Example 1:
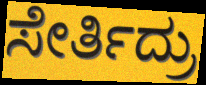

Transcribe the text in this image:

ಸೇರ್ತಿದ್ರು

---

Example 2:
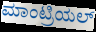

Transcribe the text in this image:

ಮಾಂಟ್ರಿಯಲ್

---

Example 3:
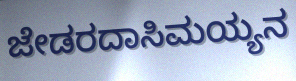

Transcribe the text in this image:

ಜೇಡರದಾಸಿಮಯ್ಯನ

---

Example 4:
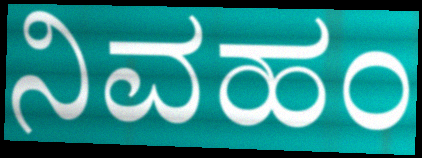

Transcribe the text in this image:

ನಿವಹಂ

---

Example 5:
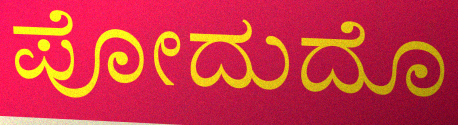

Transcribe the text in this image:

ಪೋದುದೊ